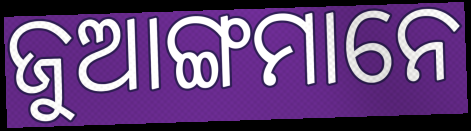
ଜୁଆଙ୍ଗମାନେ